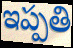
ఇప్పతి